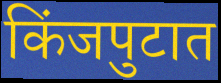
किंजपुटात